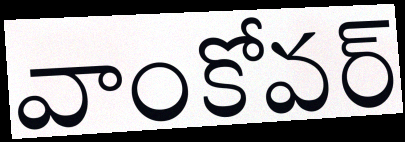
వాంకోవర్